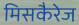
मिसकैरेज